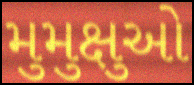
મુમુક્ષુઓ